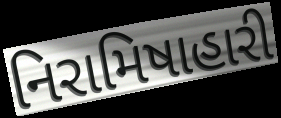
નિરામિષાહારી